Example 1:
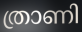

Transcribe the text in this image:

ത്രാണി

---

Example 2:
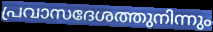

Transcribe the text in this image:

പ്രവാസദേശത്തുനിന്നും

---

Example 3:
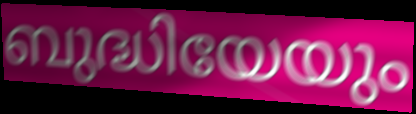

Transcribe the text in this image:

ബുദ്ധിയേയും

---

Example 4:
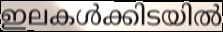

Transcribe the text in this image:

ഇലകൾക്കിടയിൽ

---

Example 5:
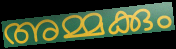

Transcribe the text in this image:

അമ്മക്കും